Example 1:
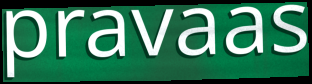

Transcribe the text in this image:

pravaas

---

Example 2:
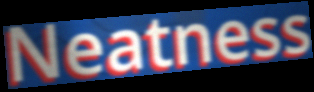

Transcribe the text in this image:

Neatness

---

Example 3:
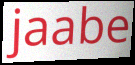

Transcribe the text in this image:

jaabe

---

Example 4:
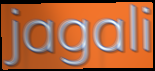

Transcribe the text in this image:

jagali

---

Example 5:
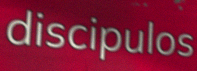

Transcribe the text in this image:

discipulos